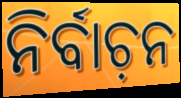
ନିର୍ବାଚ଼ନ